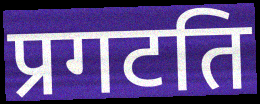
प्रगटति